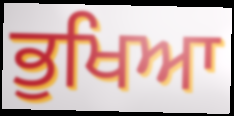
ਭੁਖਿਆ